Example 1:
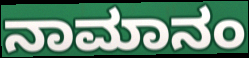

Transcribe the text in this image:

ನಾಮಾನಂ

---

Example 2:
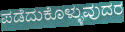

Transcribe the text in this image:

ಪಡೆದುಕೊಳ್ಳುವುದರ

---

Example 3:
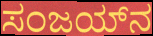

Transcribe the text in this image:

ಸಂಜಯ್‌ನ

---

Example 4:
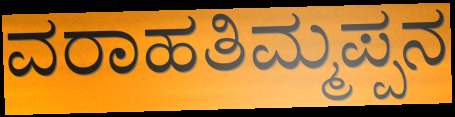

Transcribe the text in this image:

ವರಾಹತಿಮ್ಮಪ್ಪನ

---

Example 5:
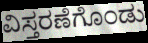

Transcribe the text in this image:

ವಿಸ್ತರಣೆಗೊಂಡು